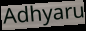
Adhyaru